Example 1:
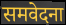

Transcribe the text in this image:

समवेदना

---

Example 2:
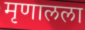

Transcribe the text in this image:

मृणालला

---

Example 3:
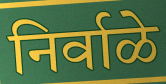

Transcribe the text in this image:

निर्वाळे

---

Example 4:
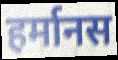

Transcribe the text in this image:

हर्मानस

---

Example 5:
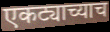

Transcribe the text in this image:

एकट्याच्याच